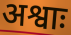
अश्वाः